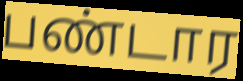
பண்டார